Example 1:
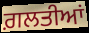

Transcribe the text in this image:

ਗ਼ਲਤੀਆਂ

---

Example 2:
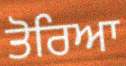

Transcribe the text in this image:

ਤੋਰਿਆ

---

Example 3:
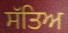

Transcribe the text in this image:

ਸੱਤਿਅ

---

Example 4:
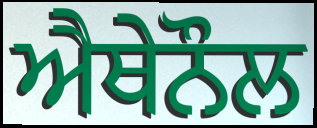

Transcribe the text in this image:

ਐਥੇਨੌਲ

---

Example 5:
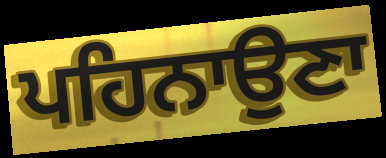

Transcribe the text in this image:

ਪਹਿਨਾਉਣਾ